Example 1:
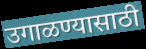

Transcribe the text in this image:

उगाळण्यासाठी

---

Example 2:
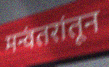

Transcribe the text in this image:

मन्वंतरांतून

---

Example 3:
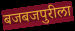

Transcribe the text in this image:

बजबजपुरीला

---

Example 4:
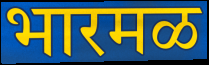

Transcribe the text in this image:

भारमळ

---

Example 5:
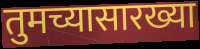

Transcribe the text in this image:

तुमच्यासारख्या